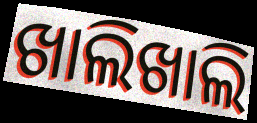
ଖାଲିଖାଲି